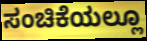
ಸಂಚಿಕೆಯಲ್ಲೂ